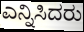
ಎನ್ನಿಸಿದರು